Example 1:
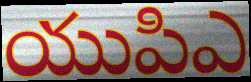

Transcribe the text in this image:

యుపిఎ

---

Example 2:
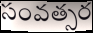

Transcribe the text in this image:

సంవత్సర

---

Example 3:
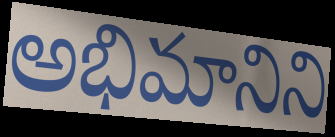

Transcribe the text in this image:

అభిమానిని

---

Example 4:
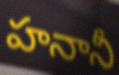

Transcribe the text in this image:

హనానీ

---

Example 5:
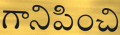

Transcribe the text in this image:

గానిపించి